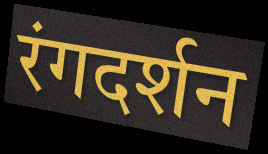
रंगदर्शन